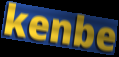
kenbe